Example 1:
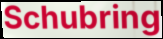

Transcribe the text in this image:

Schubring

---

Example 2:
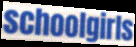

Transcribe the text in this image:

schoolgirls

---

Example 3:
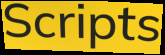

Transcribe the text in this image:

Scripts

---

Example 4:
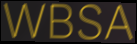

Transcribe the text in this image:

WBSA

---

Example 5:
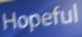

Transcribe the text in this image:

Hopeful